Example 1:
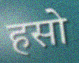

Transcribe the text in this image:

हसो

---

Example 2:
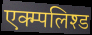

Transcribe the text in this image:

एक्म्पलिश्ड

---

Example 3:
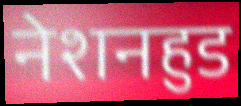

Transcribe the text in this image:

नेशनहुड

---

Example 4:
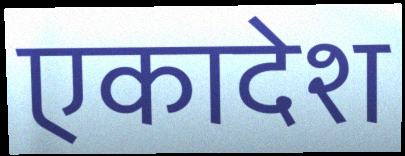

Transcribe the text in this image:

एकादेश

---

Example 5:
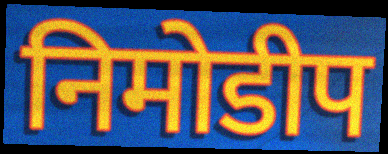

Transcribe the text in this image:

निमोडीप